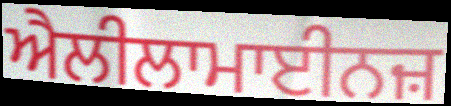
ਐਲੀਲਾਮਾਈਨਜ਼